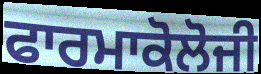
ਫਾਰਮਾਕੋਲੋਜੀ